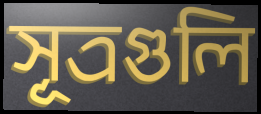
সূত্রগুলি